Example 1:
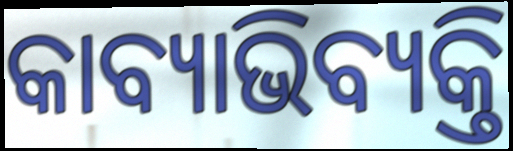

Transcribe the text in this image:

କାବ୍ୟାଭିବ୍ୟକ୍ତି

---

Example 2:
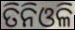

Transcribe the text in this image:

ତିନିଓଳି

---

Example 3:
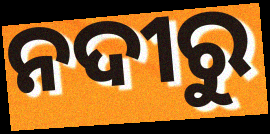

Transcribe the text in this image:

ନଦୀରୁ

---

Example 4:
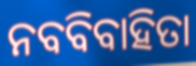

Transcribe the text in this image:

ନବବିବାହିତା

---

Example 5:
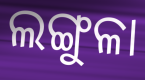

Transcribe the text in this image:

ଲଙ୍ଗୁଳା